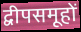
द्वीपसमूहों